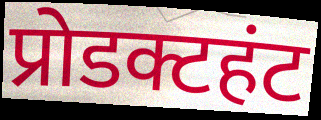
प्रोडक्टहंट